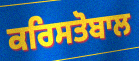
ਕਰਿਸਤੋਬਾਲ